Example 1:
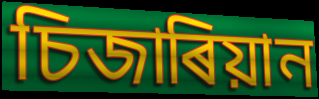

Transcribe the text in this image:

চিজাৰিয়ান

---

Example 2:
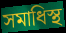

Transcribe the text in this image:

সমাধিস্থ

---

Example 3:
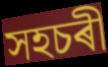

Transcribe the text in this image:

সহচৰী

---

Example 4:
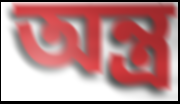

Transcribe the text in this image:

অন্ত্ৰ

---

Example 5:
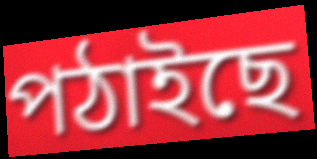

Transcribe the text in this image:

পঠাইছে